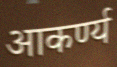
आकर्ण्य